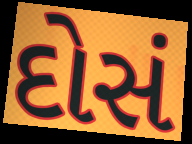
દોસં